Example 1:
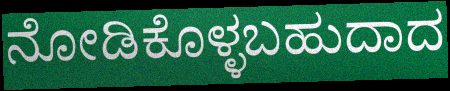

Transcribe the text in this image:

ನೋಡಿಕೊಳ್ಳಬಹುದಾದ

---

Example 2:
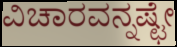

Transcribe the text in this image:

ವಿಚಾರವನ್ನಷ್ಟೇ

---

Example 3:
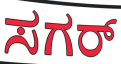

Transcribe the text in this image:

ಸಗರ್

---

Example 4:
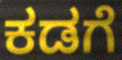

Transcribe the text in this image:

ಕಡಗೆ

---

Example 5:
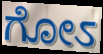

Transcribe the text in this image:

ಗೋಽ